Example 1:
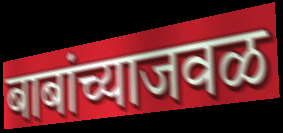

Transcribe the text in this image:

बाबांच्याजवळ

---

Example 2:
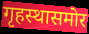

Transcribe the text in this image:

गृहस्थासमोर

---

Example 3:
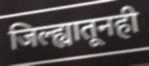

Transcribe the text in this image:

जिल्ह्यातूनही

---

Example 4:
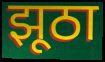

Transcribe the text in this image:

झूठा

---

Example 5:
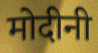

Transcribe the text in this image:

मोदीनी